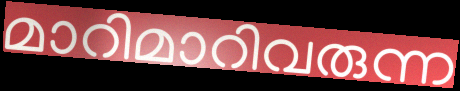
മാറിമാറിവരുന്ന